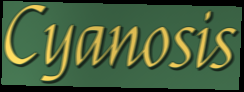
Cyanosis